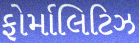
ફોર્માલિટિઝ